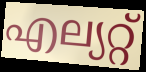
എല്യറ്റ്